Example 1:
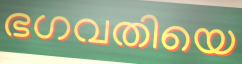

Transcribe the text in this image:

ഭഗവതിയെ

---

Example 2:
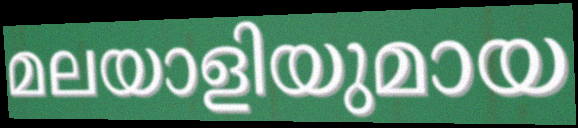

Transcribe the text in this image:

മലയാളിയുമായ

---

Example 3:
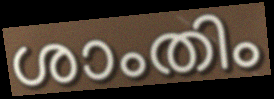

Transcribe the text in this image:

ശാംതിം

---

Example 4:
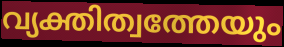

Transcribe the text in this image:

വ്യക്തിത്വത്തേയും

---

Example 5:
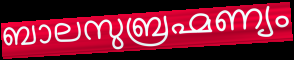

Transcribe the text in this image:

ബാലസുബ്രഹ്മണ്യം